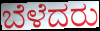
ಬೆಳೆದರು